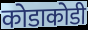
कोडाकोडी